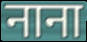
नाना